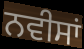
ਨਵੀਸਾਂ